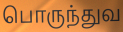
பொருந்துவ